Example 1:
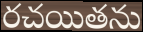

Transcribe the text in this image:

రచయితను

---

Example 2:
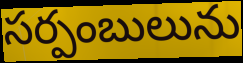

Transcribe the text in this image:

సర్పంబులును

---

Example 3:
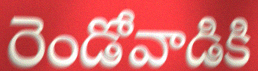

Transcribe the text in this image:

రెండోవాడికి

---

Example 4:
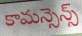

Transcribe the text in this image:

కామన్సెన్స్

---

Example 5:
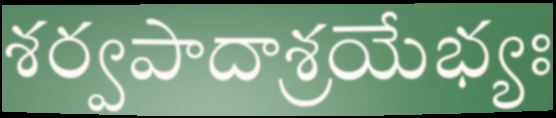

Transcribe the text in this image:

శర్వపాదాశ్రయేభ్యః